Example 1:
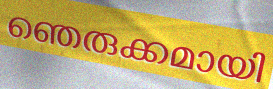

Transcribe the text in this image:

ഞെരുക്കമായി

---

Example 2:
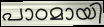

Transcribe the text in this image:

പാഠമായി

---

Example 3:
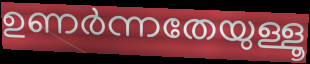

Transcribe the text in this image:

ഉണർന്നതേയുള്ളൂ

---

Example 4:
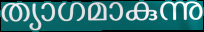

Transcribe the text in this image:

ത്യാഗമാകുന്നു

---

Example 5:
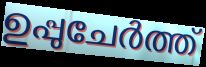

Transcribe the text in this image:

ഉപ്പുചേർത്ത്